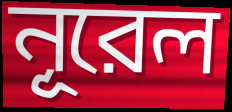
নূরেল